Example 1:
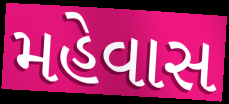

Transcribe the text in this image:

મહેવાસ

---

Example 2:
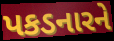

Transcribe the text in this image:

પકડનારને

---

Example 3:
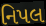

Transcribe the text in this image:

નિપલ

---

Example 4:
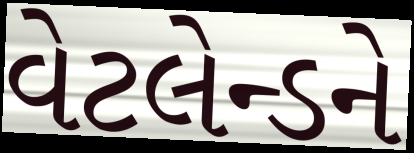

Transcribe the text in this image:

વેટલેન્ડને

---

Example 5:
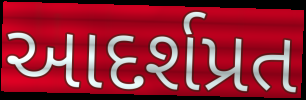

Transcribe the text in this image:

આદર્શપ્રત